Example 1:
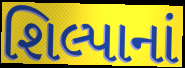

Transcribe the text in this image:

શિલ્પાનાં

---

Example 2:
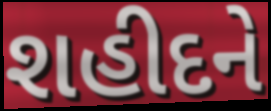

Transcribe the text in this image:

શહીદને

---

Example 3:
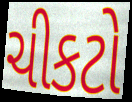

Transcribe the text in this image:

ચીકટો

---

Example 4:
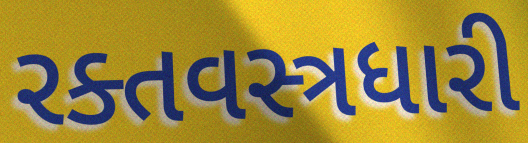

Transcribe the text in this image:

રક્તવસ્ત્રધારી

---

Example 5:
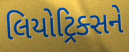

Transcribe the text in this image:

લિયોટ્રિક્સને